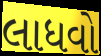
લાધવો